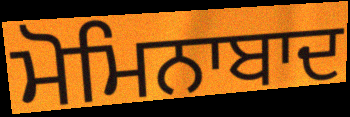
ਮੋਮਿਨਾਬਾਦ